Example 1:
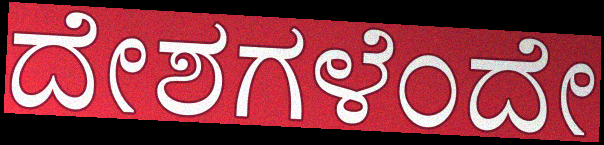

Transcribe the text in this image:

ದೇಶಗಳೆಂದೇ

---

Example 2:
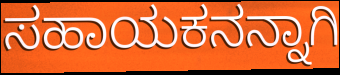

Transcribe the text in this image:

ಸಹಾಯಕನನ್ನಾಗಿ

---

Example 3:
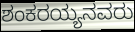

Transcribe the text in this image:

ಶಂಕರಯ್ಯನವರು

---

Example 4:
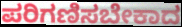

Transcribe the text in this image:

ಪರಿಗಣಿಸಬೇಕಾದ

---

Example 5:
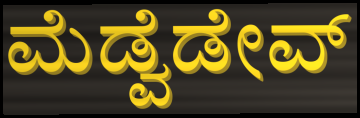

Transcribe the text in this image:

ಮೆಡ್ವೆಡೇವ್